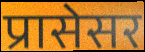
प्रासेसर